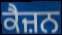
ਕੈਜ਼ਨ